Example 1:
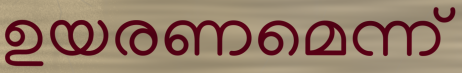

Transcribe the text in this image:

ഉയരണമെന്ന്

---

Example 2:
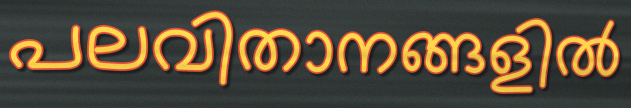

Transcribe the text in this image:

പലവിതാനങ്ങളിൽ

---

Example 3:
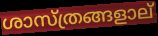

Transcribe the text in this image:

ശാസ്ത്രങ്ങളാല്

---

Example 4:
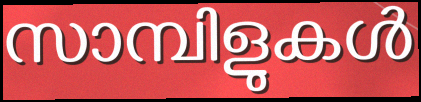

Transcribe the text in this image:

സാമ്പിളുകൾ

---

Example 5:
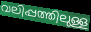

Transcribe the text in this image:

വലിപ്പത്തിലുള്ള